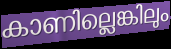
കാണില്ലെങ്കിലും